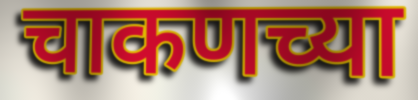
चाकणच्या